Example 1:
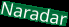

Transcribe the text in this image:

Naradar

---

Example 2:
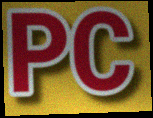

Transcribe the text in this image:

PC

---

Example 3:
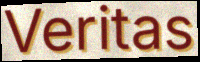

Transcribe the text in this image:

Veritas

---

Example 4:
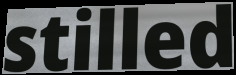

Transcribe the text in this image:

stilled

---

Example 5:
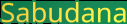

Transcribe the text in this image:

Sabudana